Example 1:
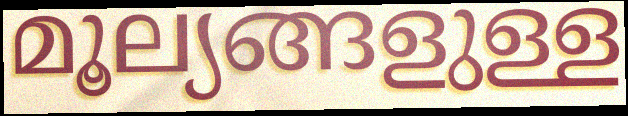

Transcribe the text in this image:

മൂല്യങ്ങളുള്ള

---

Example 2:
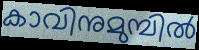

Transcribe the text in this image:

കാവിനുമുമ്പിൽ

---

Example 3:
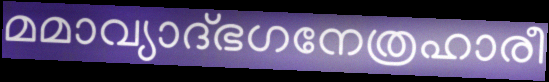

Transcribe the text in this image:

മമാവ്യാദ്ഭഗനേത്രഹാരീ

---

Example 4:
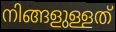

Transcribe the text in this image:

നിങ്ങളുള്ളത്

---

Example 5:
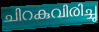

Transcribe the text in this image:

ചിറകുവിരിച്ചു